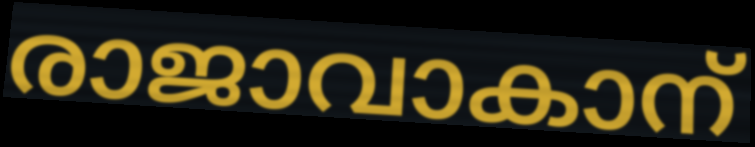
രാജാവാകാന്